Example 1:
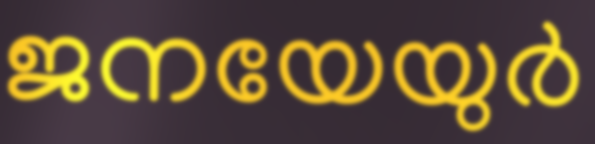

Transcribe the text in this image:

ജനയേയുർ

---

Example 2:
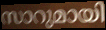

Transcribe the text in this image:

സാറുമായി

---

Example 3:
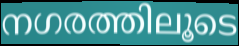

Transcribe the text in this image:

നഗരത്തിലൂടെ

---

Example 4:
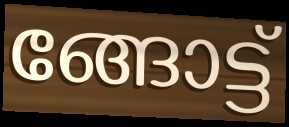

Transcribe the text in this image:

ങ്ങോട്ട്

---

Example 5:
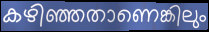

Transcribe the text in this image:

കഴിഞ്ഞതാണെങ്കിലും